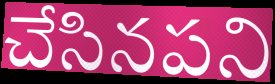
చేసినపని